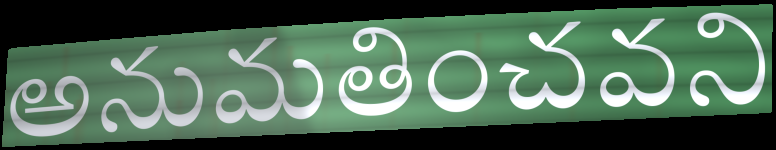
అనుమతించవని